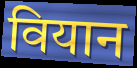
वियान